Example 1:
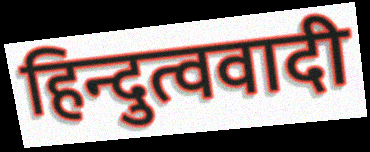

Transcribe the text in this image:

हिन्दुत्ववादी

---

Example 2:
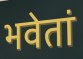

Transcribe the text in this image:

भवेतां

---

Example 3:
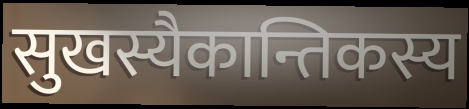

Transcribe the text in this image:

सुखस्यैकान्तिकस्य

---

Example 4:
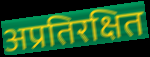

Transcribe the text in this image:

अप्रतिरक्षित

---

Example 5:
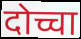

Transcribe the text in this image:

दोच्चा